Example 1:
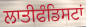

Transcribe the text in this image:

ਲਾਤੀਫੰਡਿਸਟਾਂ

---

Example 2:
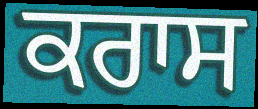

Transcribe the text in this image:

ਕਰਾਸ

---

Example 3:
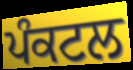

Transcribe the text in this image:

ਪੰਕਟਲ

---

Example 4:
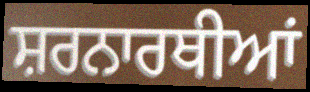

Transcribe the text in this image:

ਸ਼ਰਨਾਰਥੀਆਂ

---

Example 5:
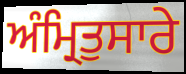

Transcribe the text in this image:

ਅੰਮ੍ਰਿਤੁਸਾਰੇ